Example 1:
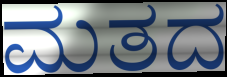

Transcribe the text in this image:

ಮತದ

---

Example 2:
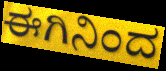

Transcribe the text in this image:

ಈಗಿನಿಂದ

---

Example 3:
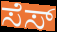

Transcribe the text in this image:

ಸೆಸ್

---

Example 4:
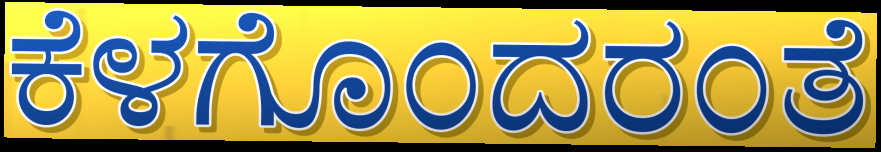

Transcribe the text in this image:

ಕೆಳಗೊಂದರಂತೆ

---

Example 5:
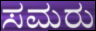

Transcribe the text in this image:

ಸಮರು